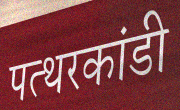
पत्थरकांडी